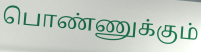
பொண்ணுக்கும்